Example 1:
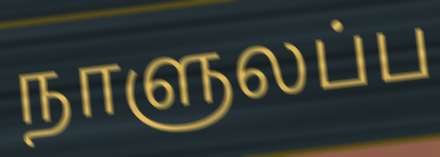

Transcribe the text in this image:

நாளுலப்ப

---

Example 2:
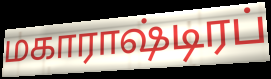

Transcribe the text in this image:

மகாராஷ்டிரப்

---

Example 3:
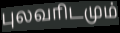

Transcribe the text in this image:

புலவரிடமும்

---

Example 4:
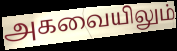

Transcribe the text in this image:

அகவையிலும்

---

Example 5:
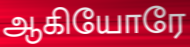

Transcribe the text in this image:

ஆகியோரே